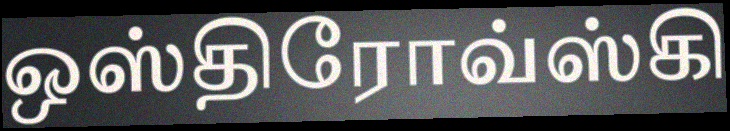
ஒஸ்திரோவ்ஸ்கி